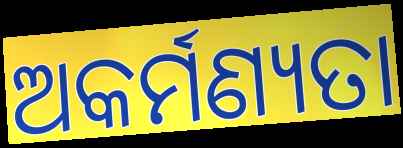
ଅକର୍ମଣ୍ୟତା